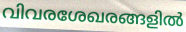
വിവരശേഖരങ്ങളിൽ